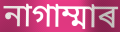
নাগাম্মাৰ